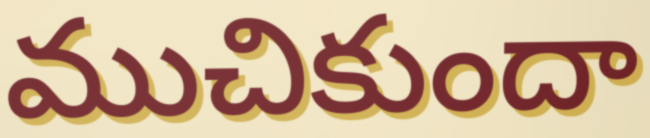
ముచికుందా